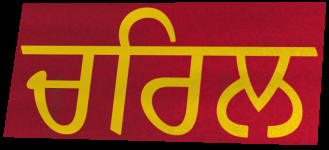
ਚਰਿਲ